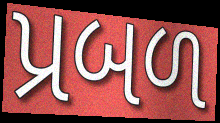
પ્રબળ